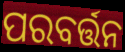
ପରବର୍ତ୍ତନ